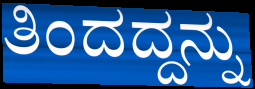
ತಿಂದದ್ದನ್ನು